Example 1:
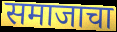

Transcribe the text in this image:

समाजाचा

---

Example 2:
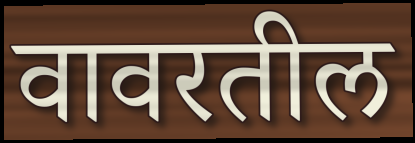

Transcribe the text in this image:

वावरतील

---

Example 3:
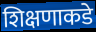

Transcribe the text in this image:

शिक्षणाकडे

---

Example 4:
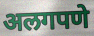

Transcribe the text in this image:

अलगपणे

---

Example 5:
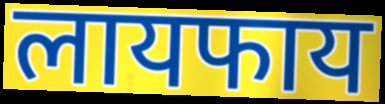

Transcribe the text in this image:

लायफाय